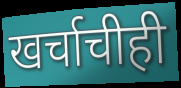
खर्चाचीही